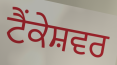
ਟੈਂਕੇਸ਼ਵਰ